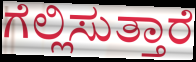
ಗೆಲ್ಲಿಸುತ್ತಾರೆ